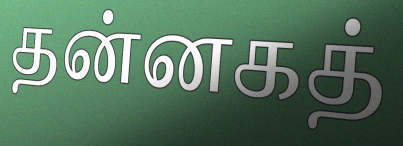
தன்னகத்